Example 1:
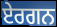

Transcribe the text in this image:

ਏਰਗਨ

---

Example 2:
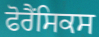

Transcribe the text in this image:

ਫੋਰੈਂਸਿਕਸ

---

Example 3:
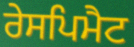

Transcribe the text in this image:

ਰੇਸਪਿਮੈਟ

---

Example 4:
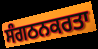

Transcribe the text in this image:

ਸੰਗਠਨਕਰਤਾ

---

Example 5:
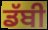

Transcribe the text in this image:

ਡੱਬੀ